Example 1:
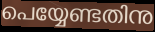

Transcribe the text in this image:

പെയ്യേണ്ടതിനു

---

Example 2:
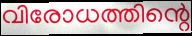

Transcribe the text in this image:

വിരോധത്തിന്റെ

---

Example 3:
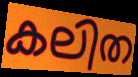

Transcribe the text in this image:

കലിത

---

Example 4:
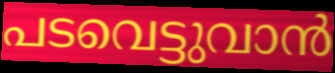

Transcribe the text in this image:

പടവെട്ടുവാൻ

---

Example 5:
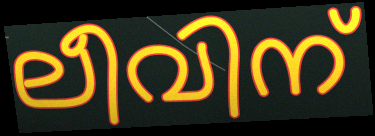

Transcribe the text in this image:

ലീവിന്